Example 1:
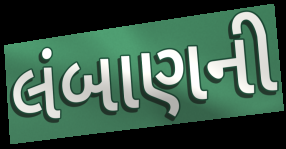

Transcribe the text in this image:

લંબાણની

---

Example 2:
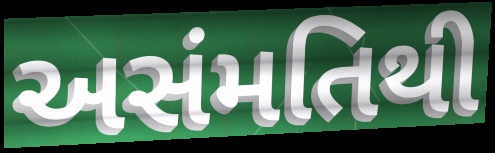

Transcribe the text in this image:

અસંમતિથી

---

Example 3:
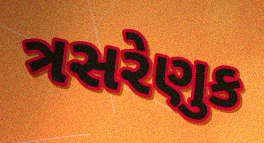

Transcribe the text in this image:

ત્રસરેણુક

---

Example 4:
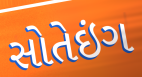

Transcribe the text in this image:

સોતેઇંગ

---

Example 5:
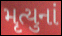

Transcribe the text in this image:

મૃત્યુનાં